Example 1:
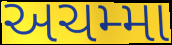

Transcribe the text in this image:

અચમ્મા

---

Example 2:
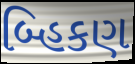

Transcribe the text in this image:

બ્હિકણ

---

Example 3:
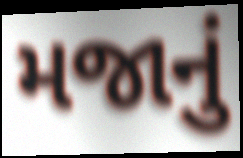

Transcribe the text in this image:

મજાનું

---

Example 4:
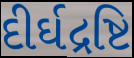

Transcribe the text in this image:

દીર્ઘદ્રષ્ટિ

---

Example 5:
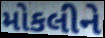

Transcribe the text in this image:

મોકલીને